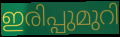
ഇരിപ്പുമുറി